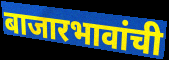
बाजारभावांची